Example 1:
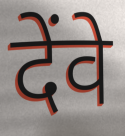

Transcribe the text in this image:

देंवे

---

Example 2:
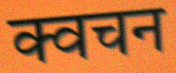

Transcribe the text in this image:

क्वचन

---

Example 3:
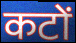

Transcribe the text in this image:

कटों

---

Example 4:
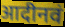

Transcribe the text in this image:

आदीनवं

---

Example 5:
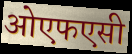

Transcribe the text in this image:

ओएफएसी